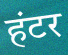
हंटर